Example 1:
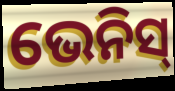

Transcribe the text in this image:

ଭେନିସ୍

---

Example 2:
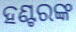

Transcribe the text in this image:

ହଣ୍ଟରଙ୍କ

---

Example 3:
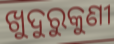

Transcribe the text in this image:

ଖୁଦୁରୁକୁଣୀ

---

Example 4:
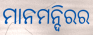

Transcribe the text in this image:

ମାନମନ୍ଦିରର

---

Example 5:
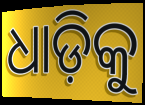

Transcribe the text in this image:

ଧାଡ଼ିକୁ